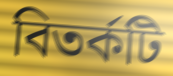
বিতর্কটি